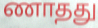
ணாதது